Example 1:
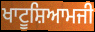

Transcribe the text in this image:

ਖਾਟੂਸ਼ਿਆਮਜੀ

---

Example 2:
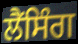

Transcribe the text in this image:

ਲੈਂਸਿੰਗ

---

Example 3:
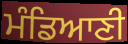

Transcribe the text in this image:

ਮੰਡਿਆਣੀ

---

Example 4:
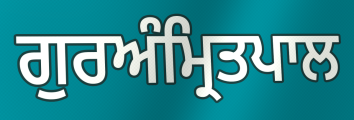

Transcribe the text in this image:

ਗੁਰਅੰਮ੍ਰਿਤਪਾਲ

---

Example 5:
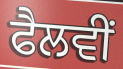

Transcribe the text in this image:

ਫੈਲਵੀਂ